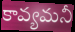
కావ్యమనీ